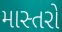
માસ્તરો